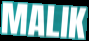
MALIK